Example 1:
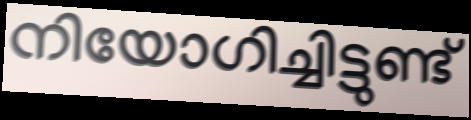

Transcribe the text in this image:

നിയോഗിച്ചിട്ടുണ്ട്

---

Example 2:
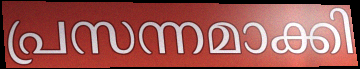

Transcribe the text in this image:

പ്രസന്നമാക്കി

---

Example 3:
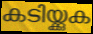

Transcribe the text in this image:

കടിയ്ക്കുക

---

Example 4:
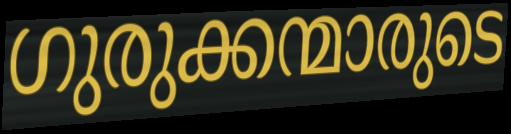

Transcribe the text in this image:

ഗുരുക്കന്മാരുടെ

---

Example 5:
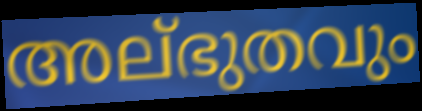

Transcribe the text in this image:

അല്ഭുതവും